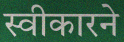
स्वीकारने